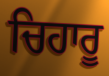
ਚਿਹਾਰੂ